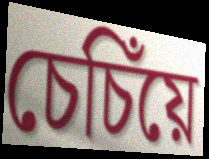
চেচিঁয়ে